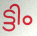
ട്ടിം